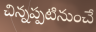
చిన్నప్పటినుంచే